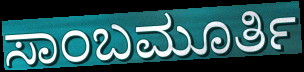
ಸಾಂಬಮೂರ್ತಿ